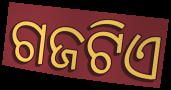
ଗଜଟିଏ